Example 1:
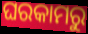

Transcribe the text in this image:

ଘରକାମରୁ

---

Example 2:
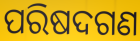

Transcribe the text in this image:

ପରିଷଦଗଣ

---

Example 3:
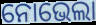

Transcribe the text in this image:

ନୋଭେଲା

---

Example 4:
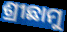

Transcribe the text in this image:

ଶ୍ରୀଛାମୁ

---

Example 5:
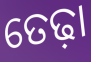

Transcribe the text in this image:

ତେଢ଼ା